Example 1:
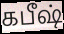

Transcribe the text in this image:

கபீஷ்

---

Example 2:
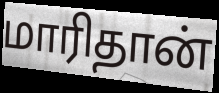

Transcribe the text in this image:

மாரிதான்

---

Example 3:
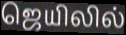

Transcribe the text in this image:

ஜெயிலில்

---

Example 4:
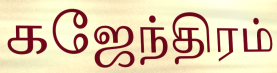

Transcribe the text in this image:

கஜேந்திரம்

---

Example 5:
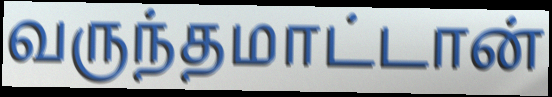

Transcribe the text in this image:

வருந்தமாட்டான்